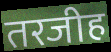
तरजीह